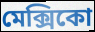
মেক্সিকো